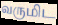
வருமிட